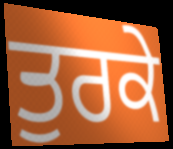
ਤੁਰਕੇ